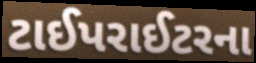
ટાઈપરાઈટરના